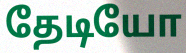
தேடியோ